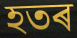
হতৰ